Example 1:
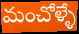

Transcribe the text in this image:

మంచోళ్ళే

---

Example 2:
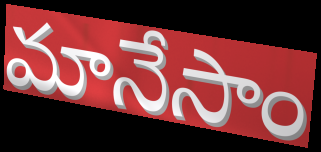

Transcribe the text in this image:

మానేసాం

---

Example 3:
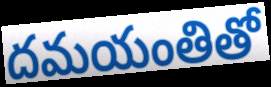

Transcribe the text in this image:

దమయంతితో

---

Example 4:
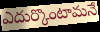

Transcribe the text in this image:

ఎదుర్కొంటామనే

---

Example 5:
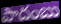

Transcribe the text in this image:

పాదంబు